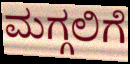
ಮಗ್ಗಲಿಗೆ